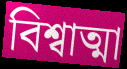
বিশ্বাত্মা